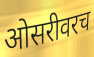
ओसरीवरच